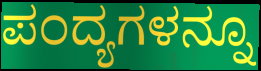
ಪಂದ್ಯಗಳನ್ನೂ